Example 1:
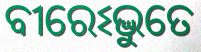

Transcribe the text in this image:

ବୀରେଽଦ୍ଭୁତେ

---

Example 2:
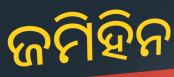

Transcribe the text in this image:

ଜମିହିନ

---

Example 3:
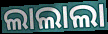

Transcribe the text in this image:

ଲାଲାଲା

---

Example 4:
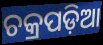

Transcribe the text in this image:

ଚକ୍ରପଡ଼ିଆ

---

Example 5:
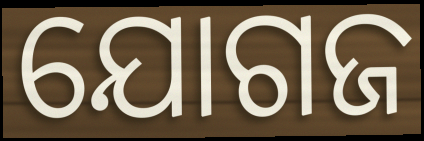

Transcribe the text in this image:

ଯୋଗଜ